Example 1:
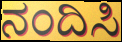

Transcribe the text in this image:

ನಂದಿಸಿ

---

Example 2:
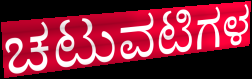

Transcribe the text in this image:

ಚಟುವಟಿಗಳ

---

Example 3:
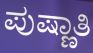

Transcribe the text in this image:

ಪುಷ್ಣಾತಿ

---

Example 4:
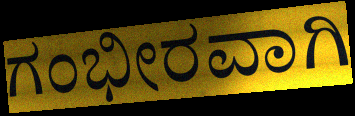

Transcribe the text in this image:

ಗಂಭೀರವಾಗಿ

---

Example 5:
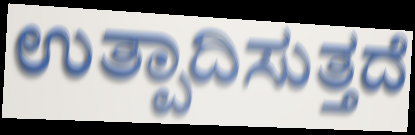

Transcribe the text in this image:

ಉತ್ಪಾದಿಸುತ್ತದೆ